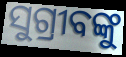
ସୁଗ୍ରୀବଙ୍କୁ